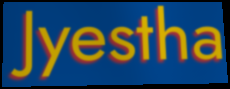
Jyestha